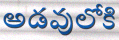
అడవులోకి